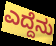
ಎದ್ದೆನು